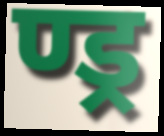
ण्ड्र